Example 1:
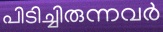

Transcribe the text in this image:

പിടിച്ചിരുന്നവർ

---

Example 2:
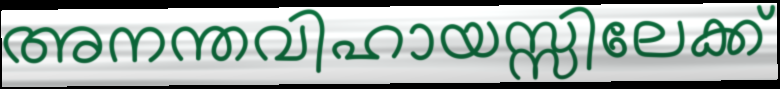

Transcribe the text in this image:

അനന്തവിഹായസ്സിലേക്ക്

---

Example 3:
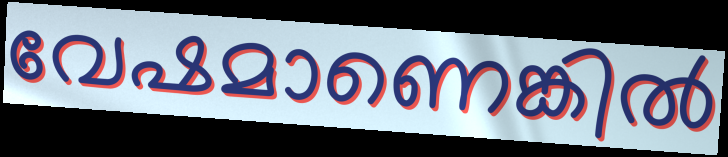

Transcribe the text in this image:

വേഷമാണെങ്കിൽ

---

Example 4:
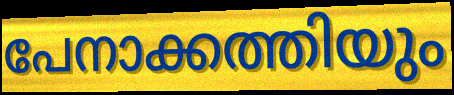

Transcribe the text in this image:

പേനാക്കത്തിയും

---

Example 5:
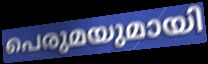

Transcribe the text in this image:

പെരുമയുമായി